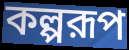
কল্পরূপ